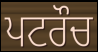
ਪਟਰੌਚ